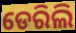
ଡେରିଲି